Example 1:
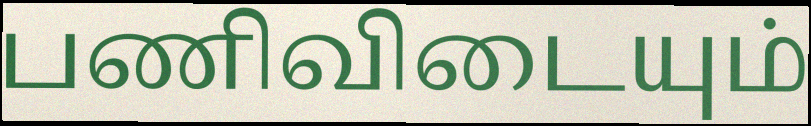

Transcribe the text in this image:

பணிவிடையும்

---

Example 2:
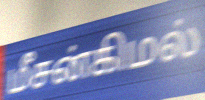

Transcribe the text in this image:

மீசன்கிமல்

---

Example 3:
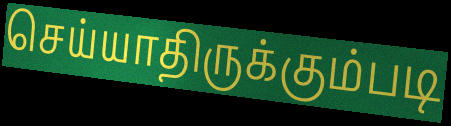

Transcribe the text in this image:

செய்யாதிருக்கும்படி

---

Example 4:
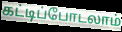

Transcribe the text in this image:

கட்டிப்போடலாம்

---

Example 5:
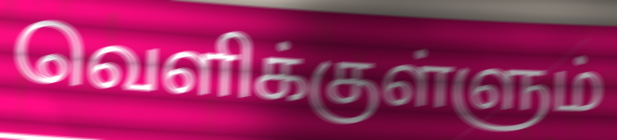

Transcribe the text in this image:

வெளிக்குள்ளும்